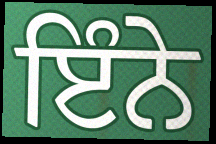
ਇੰਨੇ